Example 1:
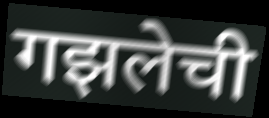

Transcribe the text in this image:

गझलेची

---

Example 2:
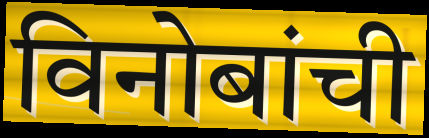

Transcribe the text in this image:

विनोबांची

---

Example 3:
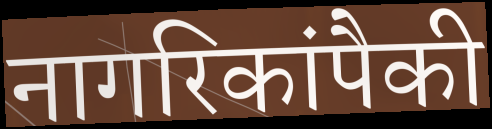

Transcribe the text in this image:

नागरिकांपैकी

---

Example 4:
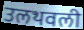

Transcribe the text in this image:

उलथवली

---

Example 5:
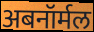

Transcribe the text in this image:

अबनॉर्मल